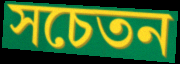
সচেতন